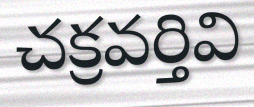
చక్రవర్తివి